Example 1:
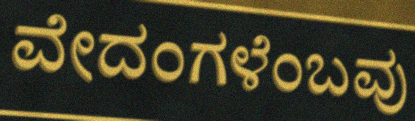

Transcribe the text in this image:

ವೇದಂಗಳೆಂಬವು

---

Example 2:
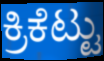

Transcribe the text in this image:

ಕ್ರಿಕೆಟ್ಟು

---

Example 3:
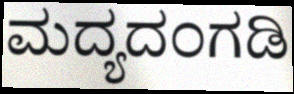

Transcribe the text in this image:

ಮದ್ಯದಂಗಡಿ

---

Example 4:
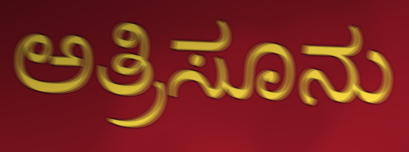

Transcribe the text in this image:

ಅತ್ರಿಸೂನು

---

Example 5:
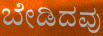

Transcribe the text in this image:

ಬೇಡಿದವು